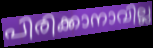
പിരിക്കാനാവില്ല